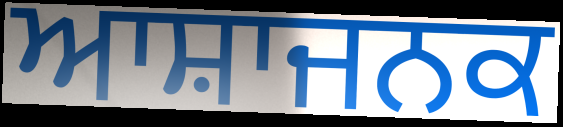
ਆਸ਼ਾਜਨਕ